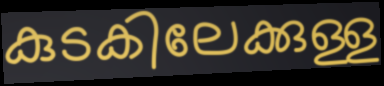
കുടകിലേക്കുള്ള